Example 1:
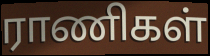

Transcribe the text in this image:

ராணிகள்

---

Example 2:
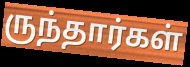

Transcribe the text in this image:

ருந்தார்கள்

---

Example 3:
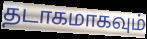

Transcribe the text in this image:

தடாகமாகவும்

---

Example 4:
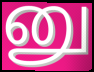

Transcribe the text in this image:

னு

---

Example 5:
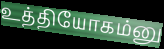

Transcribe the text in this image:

உத்தியோகம்னு